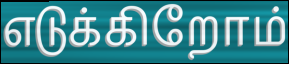
எடுக்கிறோம்